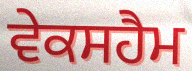
ਵੇਕਸਹੈਮ